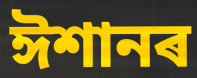
ঈশানৰ